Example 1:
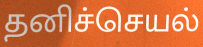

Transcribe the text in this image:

தனிச்செயல்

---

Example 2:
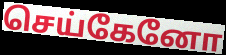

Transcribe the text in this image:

செய்கேனோ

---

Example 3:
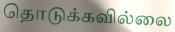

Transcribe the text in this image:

தொடுக்கவில்லை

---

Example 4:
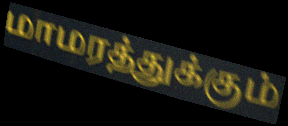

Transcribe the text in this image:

மாமரத்துக்கும்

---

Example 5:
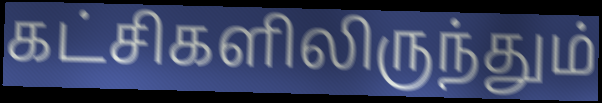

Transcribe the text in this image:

கட்சிகளிலிருந்தும்